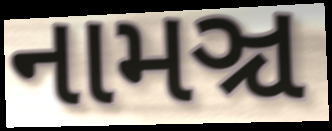
નામઞ્ચ